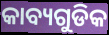
କାବ୍ୟଗୁଡିକ